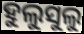
ହୁଲୁସୁଲୁ